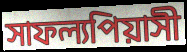
সাফল্যপিয়াসী